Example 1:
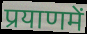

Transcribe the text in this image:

प्रयाणमें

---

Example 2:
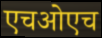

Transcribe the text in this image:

एचओएच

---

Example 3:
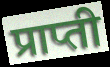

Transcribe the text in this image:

प्राप्ती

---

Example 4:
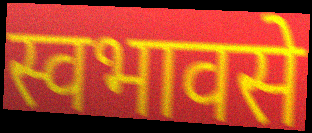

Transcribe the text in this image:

स्वभावसे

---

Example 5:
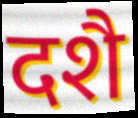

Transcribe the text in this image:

दशै